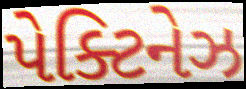
પેક્ટિનેઝ